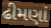
ઢીમણાં